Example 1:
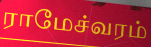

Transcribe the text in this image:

ராமேச்வரம்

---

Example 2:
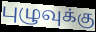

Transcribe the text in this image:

புழுவுக்கு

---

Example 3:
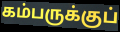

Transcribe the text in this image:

கம்பருக்குப்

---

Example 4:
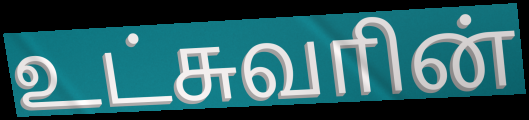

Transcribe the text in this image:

உட்சுவரின்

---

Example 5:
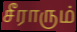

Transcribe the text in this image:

சீராரும்